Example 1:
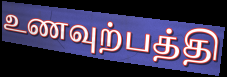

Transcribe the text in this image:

உணவுற்பத்தி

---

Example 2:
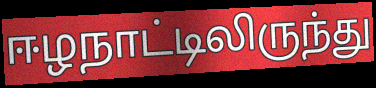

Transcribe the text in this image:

ஈழநாட்டிலிருந்து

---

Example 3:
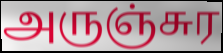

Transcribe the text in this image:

அருஞ்சுர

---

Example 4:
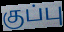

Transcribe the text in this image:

குப்பு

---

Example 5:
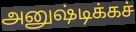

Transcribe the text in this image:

அனுஷ்டிக்கச்